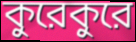
কুরেকুরে